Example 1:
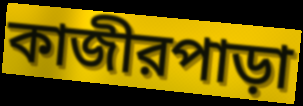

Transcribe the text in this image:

কাজীরপাড়া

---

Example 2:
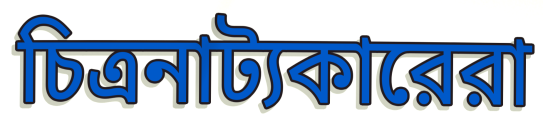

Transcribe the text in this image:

চিত্রনাট্যকারেরা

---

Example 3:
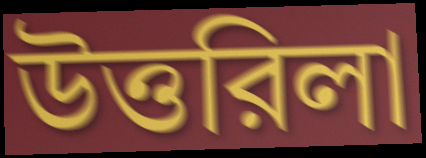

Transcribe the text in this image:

উত্তরিলা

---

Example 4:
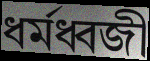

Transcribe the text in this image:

ধর্মধ্বজী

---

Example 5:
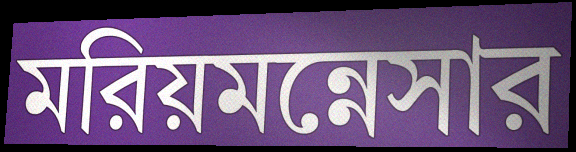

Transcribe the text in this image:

মরিয়মন্নেসার